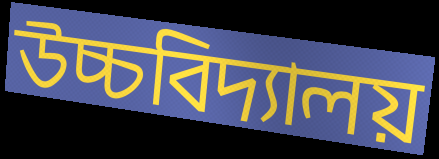
উচ্চবিদ্যালয়